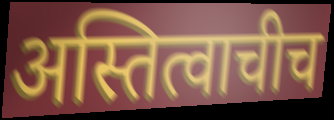
अस्तित्वाचीच